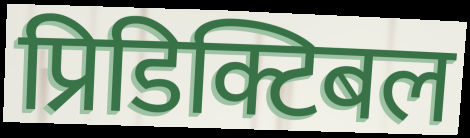
प्रिडिक्टिबल